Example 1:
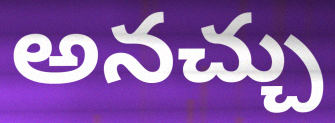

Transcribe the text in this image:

అనచ్చు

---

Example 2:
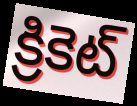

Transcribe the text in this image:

క్రికెట్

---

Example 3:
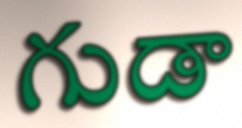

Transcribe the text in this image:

గుడా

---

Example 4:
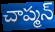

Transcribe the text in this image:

చాప్మన్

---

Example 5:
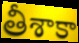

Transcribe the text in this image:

తీశాకా